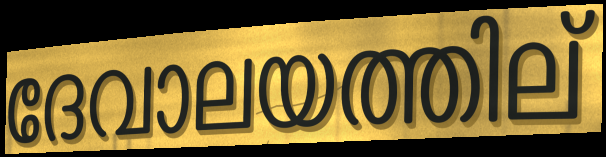
ദേവാലയത്തില്